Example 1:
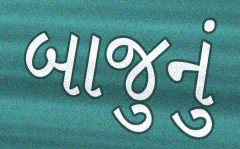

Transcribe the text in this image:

બાજુનું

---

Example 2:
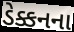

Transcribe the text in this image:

ડેક્કનના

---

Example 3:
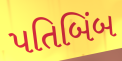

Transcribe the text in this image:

પતિબિંબ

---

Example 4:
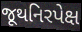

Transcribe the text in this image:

જૂથનિરપેક્ષ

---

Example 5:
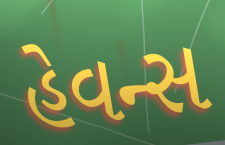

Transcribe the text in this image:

હેવન્સ